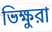
ভিক্ষুরা